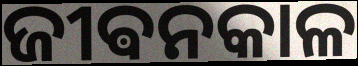
ଜୀଵନକାଳ